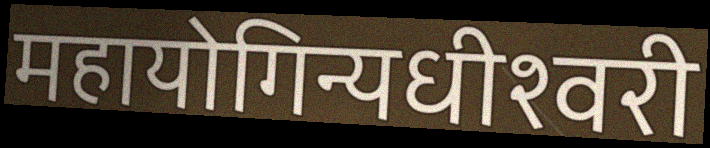
महायोगिन्यधीश्वरी